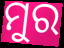
ମୁର